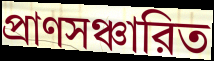
প্রাণসঞ্চারিত